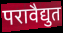
परावैद्युत